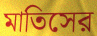
মাতিসের